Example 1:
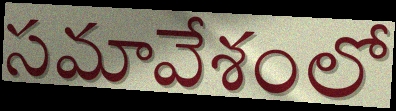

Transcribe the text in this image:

సమావేశంలో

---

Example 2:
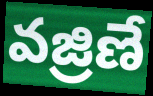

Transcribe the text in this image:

వజ్రిణే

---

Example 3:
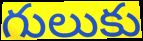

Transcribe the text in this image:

గులుకు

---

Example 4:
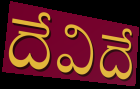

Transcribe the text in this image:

దేవిదే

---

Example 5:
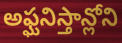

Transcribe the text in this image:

అఫ్ఘనిస్తాన్లోని